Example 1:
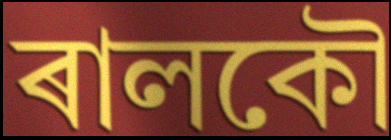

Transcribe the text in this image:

ৰালকৌ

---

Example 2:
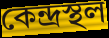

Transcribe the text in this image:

কেন্দ্ৰস্থল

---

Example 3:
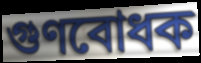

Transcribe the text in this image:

গুণবোধক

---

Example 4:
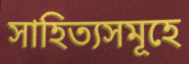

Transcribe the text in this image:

সাহিত্যসমূহে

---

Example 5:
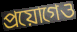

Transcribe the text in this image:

প্ৰয়োগেও